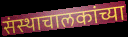
संस्थाचालकांच्या